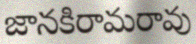
జానకిరామరావు